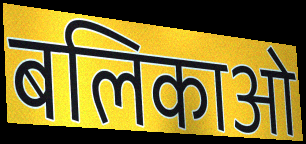
बलिकाओ